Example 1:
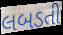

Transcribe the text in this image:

લબડતી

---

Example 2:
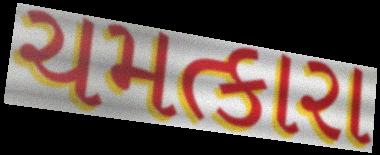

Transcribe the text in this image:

ચમત્કારા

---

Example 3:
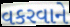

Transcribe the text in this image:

વકરવાને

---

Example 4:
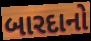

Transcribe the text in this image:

બારદાનો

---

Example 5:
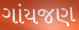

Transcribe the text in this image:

ગાંયજણ